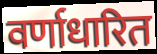
वर्णाधारित